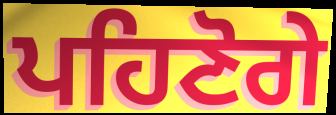
ਪਹਿਣੋਗੇ